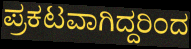
ಪ್ರಕಟವಾಗಿದ್ದರಿಂದ